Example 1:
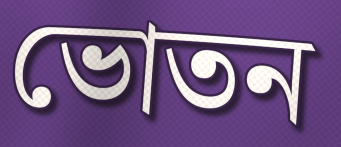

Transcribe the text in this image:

ভোতন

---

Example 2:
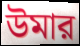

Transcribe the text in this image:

উমার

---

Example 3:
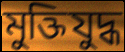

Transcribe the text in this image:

মুক্তিযুদ্ধ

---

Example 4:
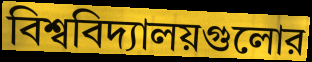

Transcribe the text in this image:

বিশ্ববিদ্যালয়গুলোর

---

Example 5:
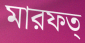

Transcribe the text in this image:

মারফত্